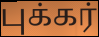
புக்கர்